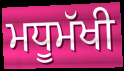
ਮਧੂਮੱਖੀ